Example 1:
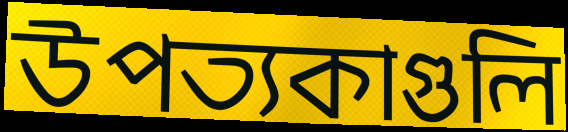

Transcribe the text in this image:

উপত্যকাগুলি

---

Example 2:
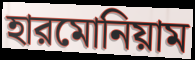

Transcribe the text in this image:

হারমোনিয়াম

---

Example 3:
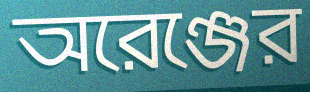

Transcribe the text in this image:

অরেঞ্জের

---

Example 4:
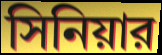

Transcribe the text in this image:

সিনিয়ার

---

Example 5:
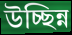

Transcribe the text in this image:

উচ্ছিন্ন